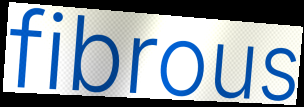
fibrous